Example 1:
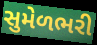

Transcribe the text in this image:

સુમેળભરી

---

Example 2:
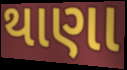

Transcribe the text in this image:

થાણા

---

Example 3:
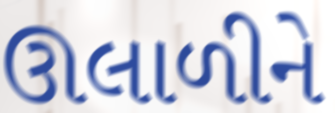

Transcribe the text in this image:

ઊલાળીને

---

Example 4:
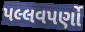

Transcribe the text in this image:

પલ્લવપર્ણો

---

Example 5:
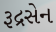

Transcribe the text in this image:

રૂદ્રસેન